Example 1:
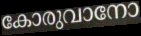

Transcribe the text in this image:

കോരുവാനോ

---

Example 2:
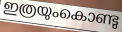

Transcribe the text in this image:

ഇത്രയുംകൊണ്ടു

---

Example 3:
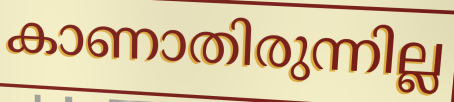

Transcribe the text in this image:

കാണാതിരുന്നില്ല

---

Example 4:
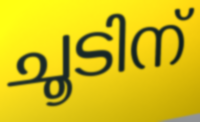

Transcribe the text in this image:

ചൂടിന്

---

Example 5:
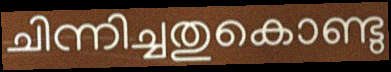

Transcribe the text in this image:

ചിന്നിച്ചതുകൊണ്ടു